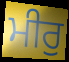
ਮੀਰੁ